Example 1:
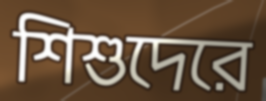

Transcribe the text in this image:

শিশুদেরে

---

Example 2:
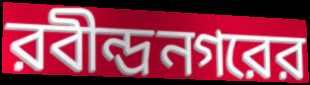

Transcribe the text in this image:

রবীন্দ্রনগরের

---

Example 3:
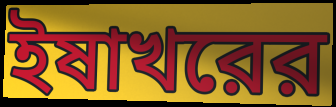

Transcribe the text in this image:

ইষাখরের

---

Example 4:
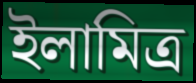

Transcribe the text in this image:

ইলামিত্র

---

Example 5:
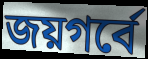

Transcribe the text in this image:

জয়গর্বে